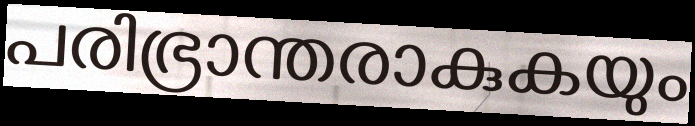
പരിഭ്രാന്തരാകുകയും